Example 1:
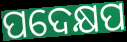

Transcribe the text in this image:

ପଦେକ୍ଷପ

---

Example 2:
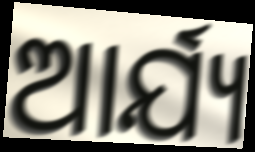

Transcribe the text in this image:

ଆର୍ଯ୍ୟ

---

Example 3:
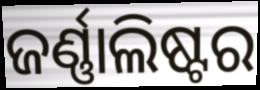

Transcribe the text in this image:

ଜର୍ଣ୍ଣାଲିଷ୍ଟର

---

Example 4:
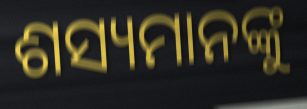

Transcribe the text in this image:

ଶସ୍ୟମାନଙ୍କୁ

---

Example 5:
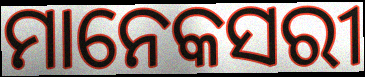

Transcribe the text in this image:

ମାନେକସରୀ